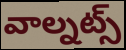
వాల్నట్స్